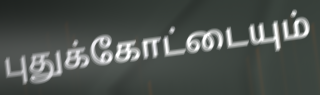
புதுக்கோட்டையும்